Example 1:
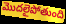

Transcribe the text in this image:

మొదలైపోతుంది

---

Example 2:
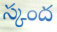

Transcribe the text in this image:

స్కంద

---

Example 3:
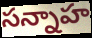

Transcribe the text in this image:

సన్నాహ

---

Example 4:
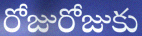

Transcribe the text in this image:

రోజురోజుకు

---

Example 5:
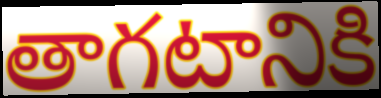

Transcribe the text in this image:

తాగటానికి